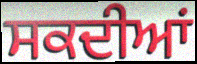
ਸਕਦੀਆਂ